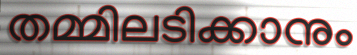
തമ്മിലടിക്കാനും